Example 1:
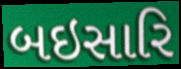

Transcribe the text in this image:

બઇસારિ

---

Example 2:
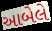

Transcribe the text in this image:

આબેલે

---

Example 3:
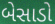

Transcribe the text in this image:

બેસાડો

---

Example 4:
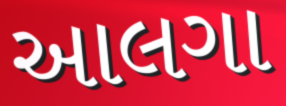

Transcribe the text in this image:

આલગા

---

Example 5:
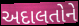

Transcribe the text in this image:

અદાલતોને